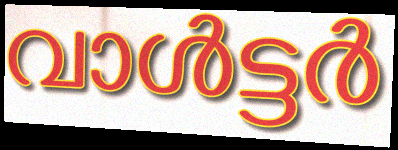
വാൾട്ടർ